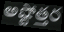
అష్టోత్తర